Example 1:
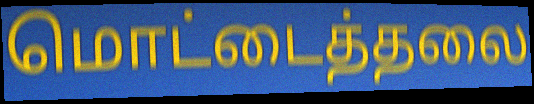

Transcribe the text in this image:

மொட்டைத்தலை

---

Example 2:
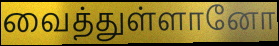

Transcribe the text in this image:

வைத்துள்ளானோ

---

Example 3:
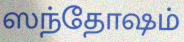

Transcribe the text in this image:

ஸந்தோஷம்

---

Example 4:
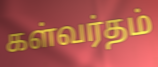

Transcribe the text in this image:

கள்வர்தம்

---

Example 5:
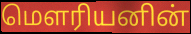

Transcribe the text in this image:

மௌரியனின்